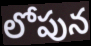
లోపున